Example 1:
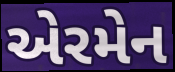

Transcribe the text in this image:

એરમેન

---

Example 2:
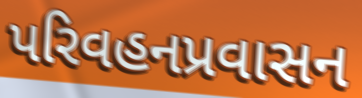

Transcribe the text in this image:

પરિવહનપ્રવાસન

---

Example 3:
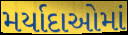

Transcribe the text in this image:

મર્યાદાઓમાં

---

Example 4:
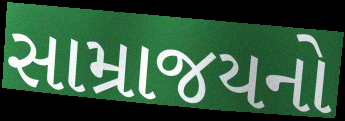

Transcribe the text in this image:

સામ્રાજયનો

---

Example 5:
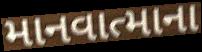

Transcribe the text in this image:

માનવાત્માના